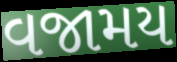
વજામય